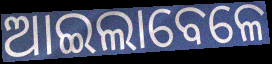
ଆଇଲାବେଳେ